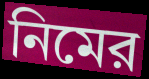
নিমের